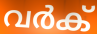
വർക്